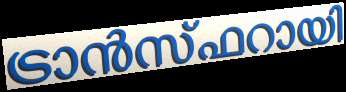
ട്രാൻസ്ഫറായി